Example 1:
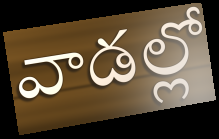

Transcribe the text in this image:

వాడల్లో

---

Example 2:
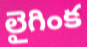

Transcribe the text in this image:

లైగింక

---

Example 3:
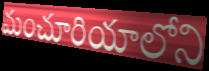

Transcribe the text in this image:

మంచూరియాలోని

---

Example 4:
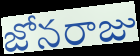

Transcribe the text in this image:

జోనరాజు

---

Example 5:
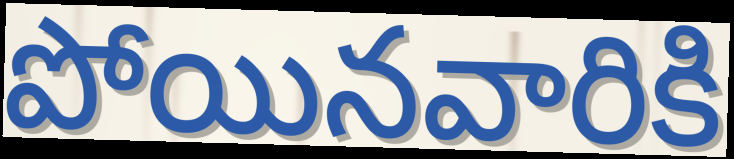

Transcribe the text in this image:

పోయినవారికి